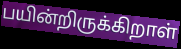
பயின்றிருக்கிறாள்